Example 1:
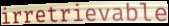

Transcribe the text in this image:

irretrievable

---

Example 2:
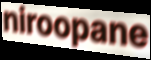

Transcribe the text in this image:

niroopane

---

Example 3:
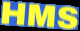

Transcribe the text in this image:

HMS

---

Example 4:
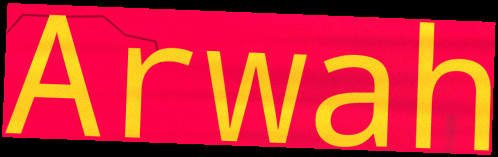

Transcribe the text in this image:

Arwah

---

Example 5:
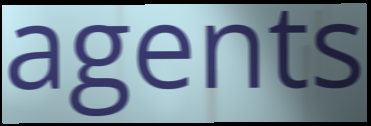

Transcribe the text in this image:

agents